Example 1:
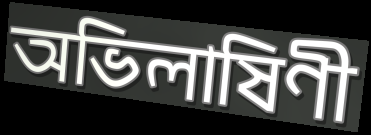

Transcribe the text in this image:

অভিলাষিণী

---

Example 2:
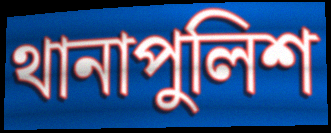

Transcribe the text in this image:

থানাপুলিশ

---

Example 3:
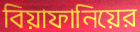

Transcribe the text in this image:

বিয়াফানিয়ের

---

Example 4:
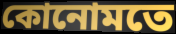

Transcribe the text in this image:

কোনোমতে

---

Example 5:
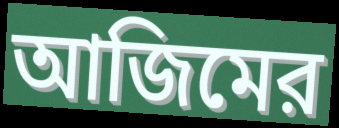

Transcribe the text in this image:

আজিমের